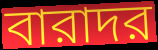
বারাদর